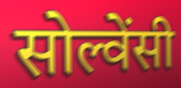
सोल्वेंसी